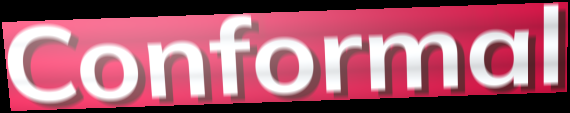
Conformal